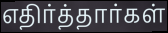
எதிர்த்தார்கள்